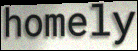
homely